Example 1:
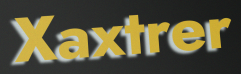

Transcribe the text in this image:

Xaxtrer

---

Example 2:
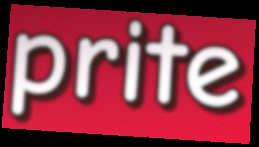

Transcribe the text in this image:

prite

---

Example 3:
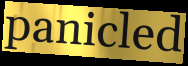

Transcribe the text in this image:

panicled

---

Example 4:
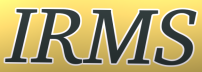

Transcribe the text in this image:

IRMS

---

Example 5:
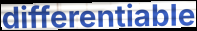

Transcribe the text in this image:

differentiable